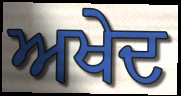
ਅਖੇਦ